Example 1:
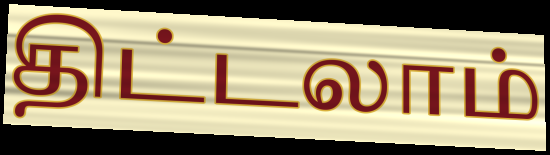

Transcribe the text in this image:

திட்டலாம்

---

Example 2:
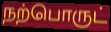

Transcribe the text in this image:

நற்பொருட்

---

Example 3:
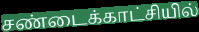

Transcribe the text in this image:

சண்டைக்காட்சியில்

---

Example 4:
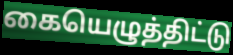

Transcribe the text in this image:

கையெழுத்திட்டு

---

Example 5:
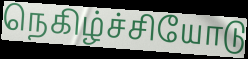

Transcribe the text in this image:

நெகிழ்ச்சியோடு